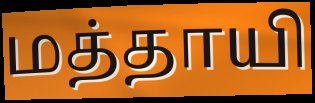
மத்தாயி